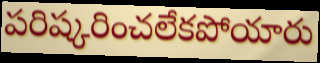
పరిష్కరించలేకపోయారు